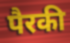
पैरकी